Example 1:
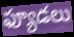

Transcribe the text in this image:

ఫ్యూడలు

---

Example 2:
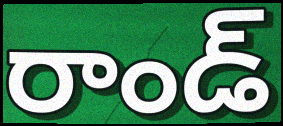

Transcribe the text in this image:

రాండ్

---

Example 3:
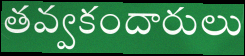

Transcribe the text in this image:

తవ్వకందారులు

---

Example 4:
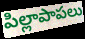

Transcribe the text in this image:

పిల్లాపాపలు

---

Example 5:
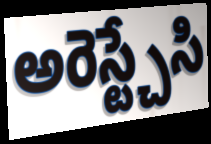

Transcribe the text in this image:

అరెస్ట్చేసి